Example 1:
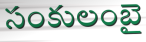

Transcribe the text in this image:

సంకులంబై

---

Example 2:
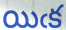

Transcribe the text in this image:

యిఁక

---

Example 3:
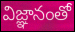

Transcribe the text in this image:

విజ్ఞానంతో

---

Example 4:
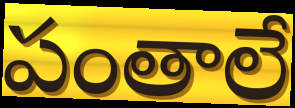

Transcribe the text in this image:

పంతాలే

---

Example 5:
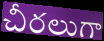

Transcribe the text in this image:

చీరలుగా